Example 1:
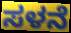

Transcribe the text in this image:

ಸಳನೆ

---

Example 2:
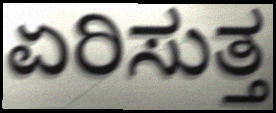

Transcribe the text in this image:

ಏರಿಸುತ್ತ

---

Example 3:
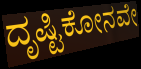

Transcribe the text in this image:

ದೃಷ್ಟಿಕೋನವೇ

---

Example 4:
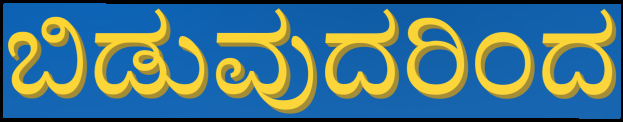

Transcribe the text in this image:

ಬಿಡುವುದರಿಂದ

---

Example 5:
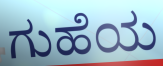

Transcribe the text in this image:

ಗುಹೆಯ